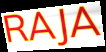
RAJA